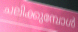
ചലിക്കുമ്പോൾ